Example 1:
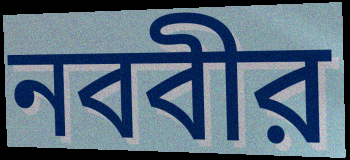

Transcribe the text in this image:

নববীর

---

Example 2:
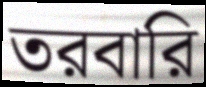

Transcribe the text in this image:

তরবারি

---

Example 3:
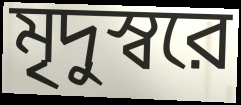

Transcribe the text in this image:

মৃদুস্বরে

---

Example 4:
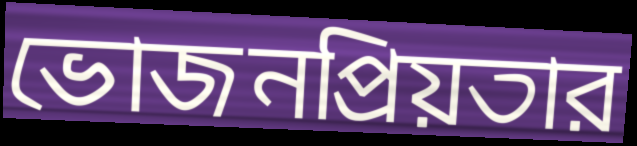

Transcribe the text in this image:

ভোজনপ্রিয়তার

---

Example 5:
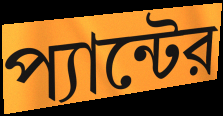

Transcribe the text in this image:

প্যান্টের